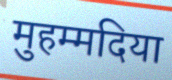
मुहम्मदिया